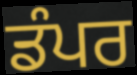
ਡੰਪਰ